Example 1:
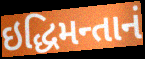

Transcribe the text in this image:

ઇદ્ધિમન્તાનં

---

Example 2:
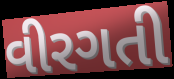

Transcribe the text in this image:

વીરગતી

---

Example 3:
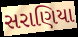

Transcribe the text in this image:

સરાણિયા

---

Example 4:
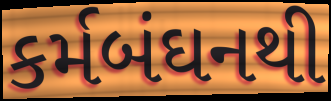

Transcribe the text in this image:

કર્મબંઘનથી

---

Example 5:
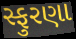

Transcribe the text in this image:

સ્ફુરણા